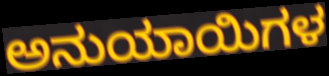
ಅನುಯಾಯಿಗಳ